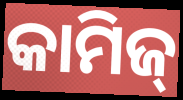
କାମିଜ୍